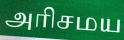
அரிசமய